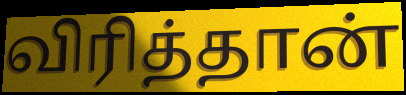
விரித்தான்